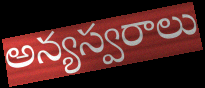
అన్యస్వరాలు